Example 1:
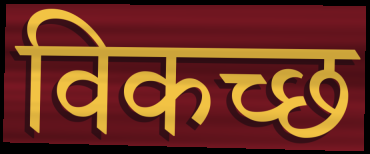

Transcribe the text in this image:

विकच्छ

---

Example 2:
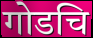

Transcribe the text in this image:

गोडचि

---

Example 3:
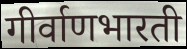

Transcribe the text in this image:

गीर्वाणभारती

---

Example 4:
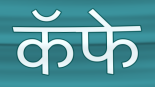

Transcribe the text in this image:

कॅफे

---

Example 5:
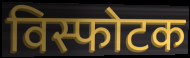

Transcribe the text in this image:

विस्फोटक